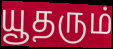
யூதரும்